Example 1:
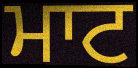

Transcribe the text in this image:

ਮਾਟ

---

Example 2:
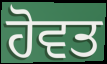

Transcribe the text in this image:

ਹੋਵਤ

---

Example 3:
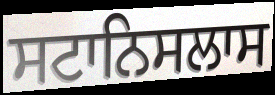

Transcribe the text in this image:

ਸਟਾਨਿਸਲਾਸ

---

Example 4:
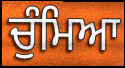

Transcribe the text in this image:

ਚੁੰਮਿਆ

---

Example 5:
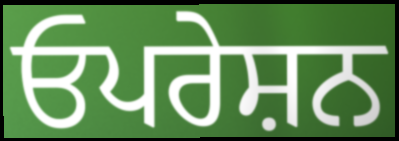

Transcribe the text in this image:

ਓਪਰੇਸ਼ਨ